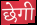
छेगी